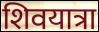
शिवयात्रा